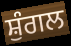
ਸ਼ੁੰਗਲ